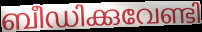
ബീഡിക്കുവേണ്ടി